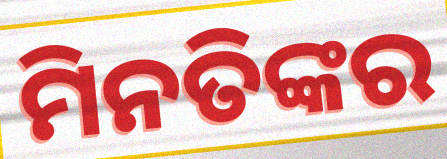
ମିନତିଙ୍କର